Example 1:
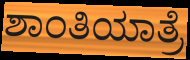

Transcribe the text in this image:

ಶಾಂತಿಯಾತ್ರೆ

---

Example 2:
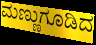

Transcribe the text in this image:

ಮಣ್ಣುಗೂಡಿದ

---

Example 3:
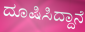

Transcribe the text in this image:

ದೂಷಿಸಿದ್ದಾನೆ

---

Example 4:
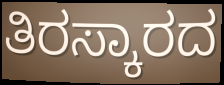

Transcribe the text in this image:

ತಿರಸ್ಕಾರದ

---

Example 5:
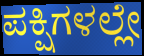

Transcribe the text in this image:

ಪಕ್ಷಿಗಳಲ್ಲೇ